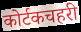
कोर्टकचहरी